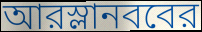
আরস্লানববের